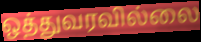
ஒத்துவரவில்லை